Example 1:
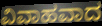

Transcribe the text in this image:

ವಿವಾಹವಾದ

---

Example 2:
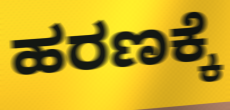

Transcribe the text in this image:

ಹರಣಕ್ಕೆ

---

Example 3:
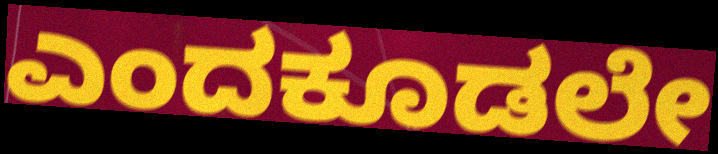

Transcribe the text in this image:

ಎಂದಕೂಡಲೇ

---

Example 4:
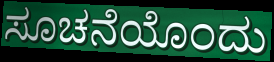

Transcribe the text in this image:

ಸೂಚನೆಯೊಂದು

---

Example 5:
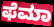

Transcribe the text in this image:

ಫೆಮಾ